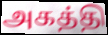
அகத்தி